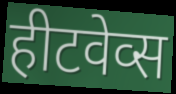
हीटवेव्स